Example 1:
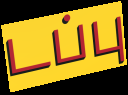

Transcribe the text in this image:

டப்பு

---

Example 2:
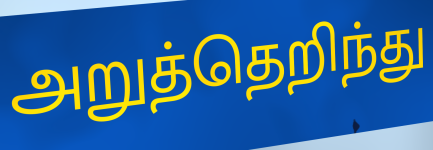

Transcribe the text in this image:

அறுத்தெறிந்து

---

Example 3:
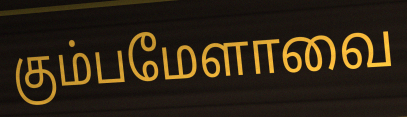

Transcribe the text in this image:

கும்பமேளாவை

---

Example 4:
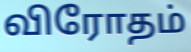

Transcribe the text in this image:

விரோதம்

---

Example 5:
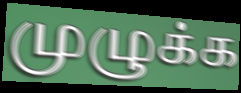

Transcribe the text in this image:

முழுக்க